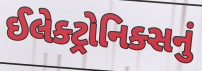
ઈલેક્ટ્રોનિક્સનું